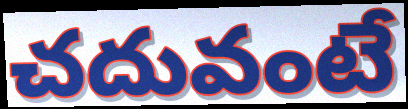
చదువంటే